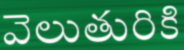
వెలుతురికి